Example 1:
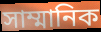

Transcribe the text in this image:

সাম্মানিক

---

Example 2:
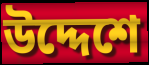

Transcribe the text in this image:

উদ্দেশে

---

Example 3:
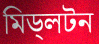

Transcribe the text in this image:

মিড্লটন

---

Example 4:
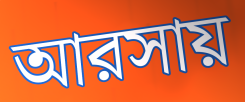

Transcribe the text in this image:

আরসায়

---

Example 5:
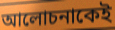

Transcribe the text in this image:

আলোচনাকেই